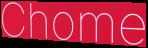
Chome